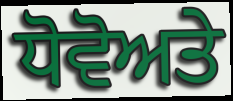
ਧੋਵੋਅਤੇ